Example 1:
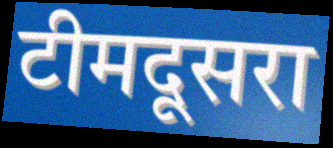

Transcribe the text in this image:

टीमदूसरा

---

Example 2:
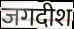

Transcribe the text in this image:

जगदीश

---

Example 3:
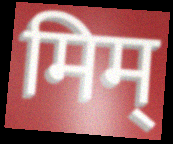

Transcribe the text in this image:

मिम्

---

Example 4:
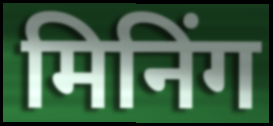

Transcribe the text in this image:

मिनिंग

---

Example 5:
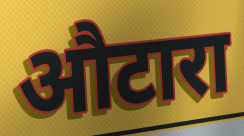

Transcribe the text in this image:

औटारा